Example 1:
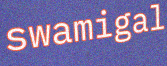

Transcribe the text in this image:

swamigal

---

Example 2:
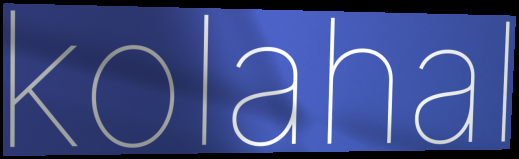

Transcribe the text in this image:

kolahal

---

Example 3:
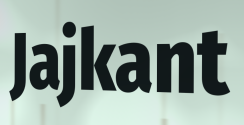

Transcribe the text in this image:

Jajkant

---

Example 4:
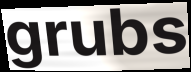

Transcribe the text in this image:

grubs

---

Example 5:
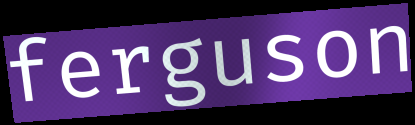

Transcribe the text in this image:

ferguson